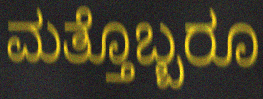
ಮತ್ತೊಬ್ಬರೂ